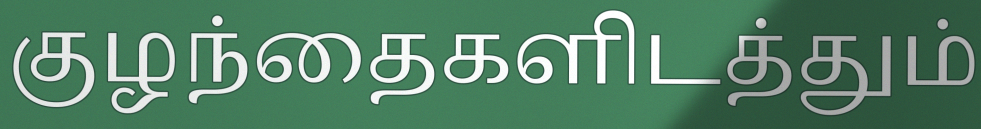
குழந்தைகளிடத்தும்